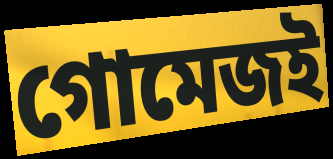
গোমেজই